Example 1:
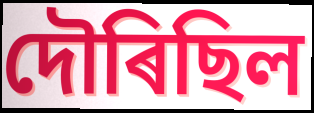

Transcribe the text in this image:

দৌৰিছিল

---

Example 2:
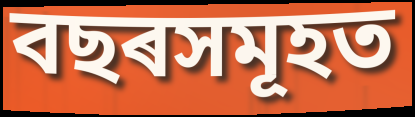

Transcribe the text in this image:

বছৰসমূহত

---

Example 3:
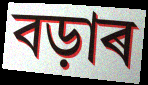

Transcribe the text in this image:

বড়াৰ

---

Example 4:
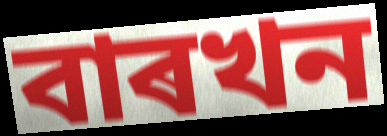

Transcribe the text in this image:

বাৰখন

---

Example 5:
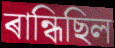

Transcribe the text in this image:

ৰান্ধিছিল